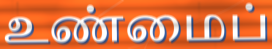
உண்மைப்